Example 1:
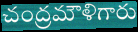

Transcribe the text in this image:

చంద్రమౌళిగారు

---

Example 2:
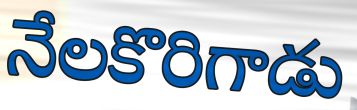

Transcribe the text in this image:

నేలకొరిగాడు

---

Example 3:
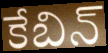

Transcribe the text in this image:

కేబిన్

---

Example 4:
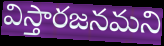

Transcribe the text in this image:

విస్తారజనమని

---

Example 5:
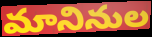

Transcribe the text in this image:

మానినుల